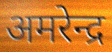
अमरेन्द्र